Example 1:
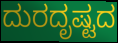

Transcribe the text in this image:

ದುರದೃಷ್ಟದ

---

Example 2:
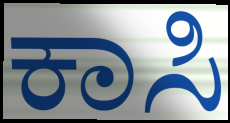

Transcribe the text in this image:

ಕಾಸಿ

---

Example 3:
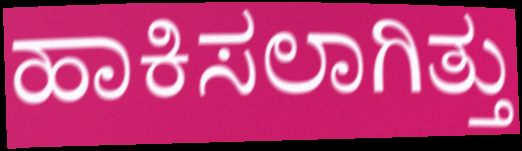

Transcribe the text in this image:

ಹಾಕಿಸಲಾಗಿತ್ತು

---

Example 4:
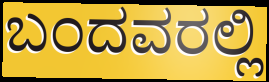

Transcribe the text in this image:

ಬಂದವರಲ್ಲಿ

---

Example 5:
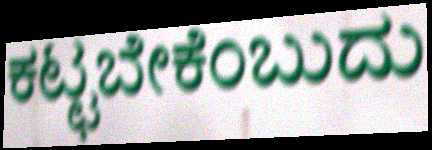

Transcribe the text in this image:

ಕಟ್ಟಬೇಕೆಂಬುದು